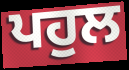
ਪਹੁਲ